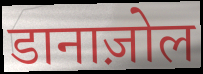
डानाज़ोल